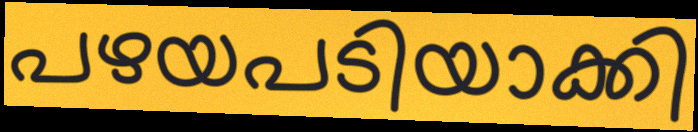
പഴയപടിയാക്കി